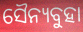
ସୈନ୍ୟବୁହା